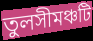
তুলসীমঞ্চটি